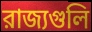
রাজ্যগুলি